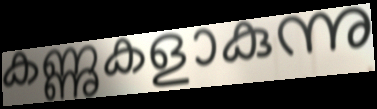
കണ്ണുകളാകുന്നു